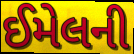
ઈમેલની